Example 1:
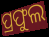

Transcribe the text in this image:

ପ୍ରଫୁଲ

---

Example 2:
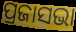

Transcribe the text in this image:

ପ୍ରଜାସଭା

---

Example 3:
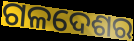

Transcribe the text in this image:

ଗଳଦେଶର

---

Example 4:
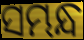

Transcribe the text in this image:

ସମ୍ଭନ୍ଧ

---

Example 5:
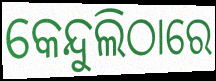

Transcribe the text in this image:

କେନ୍ଦୁଲିଠାରେ